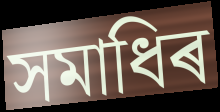
সমাধিৰ